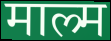
माल्म